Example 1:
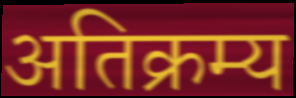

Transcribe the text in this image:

अतिक्रम्य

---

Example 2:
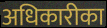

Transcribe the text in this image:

अधिकारीका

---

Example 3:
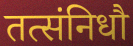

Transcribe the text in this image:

तत्संनिधौ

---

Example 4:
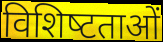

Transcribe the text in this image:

विशिष्‍टताओं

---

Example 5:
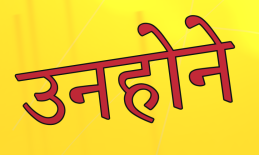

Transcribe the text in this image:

उनहोने